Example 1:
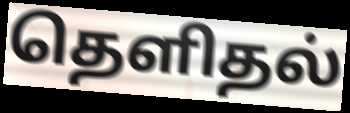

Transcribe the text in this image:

தெளிதல்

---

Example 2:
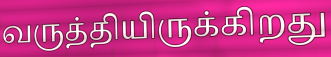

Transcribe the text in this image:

வருத்தியிருக்கிறது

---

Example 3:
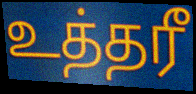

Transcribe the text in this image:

உத்தரீ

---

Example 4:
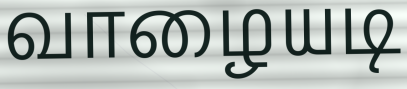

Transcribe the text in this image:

வாழையடி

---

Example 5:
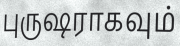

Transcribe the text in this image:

புருஷராகவும்